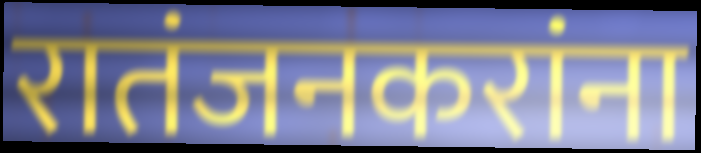
रातंजनकरांना